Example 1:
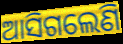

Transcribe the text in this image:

ଆସିଗଲେଣି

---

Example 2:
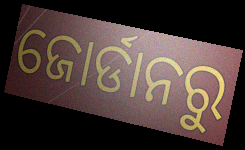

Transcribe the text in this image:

ଜୋର୍ଡାନରୁ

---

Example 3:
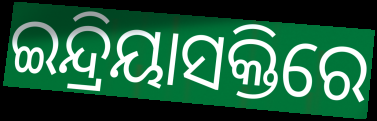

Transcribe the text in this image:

ଇନ୍ଦ୍ରିୟାସକ୍ତିରେ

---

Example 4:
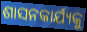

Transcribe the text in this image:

ଶାସନକାର୍ଯ୍ୟକୁ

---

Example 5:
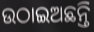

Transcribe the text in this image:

ଉଠାଇଅଛନ୍ତି